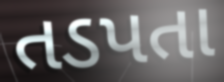
તડપતા